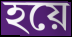
হয়ে